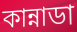
কান্নাডা